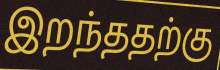
இறந்ததற்கு